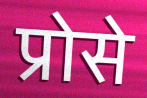
प्रोसे